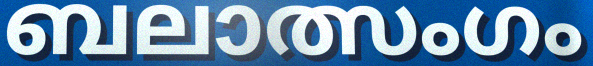
ബലാത്സംഗം